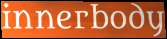
innerbody